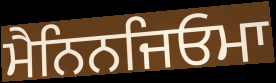
ਮੈਨਿਨਜਿਓਮਾ